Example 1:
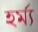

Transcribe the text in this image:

হর্ম্য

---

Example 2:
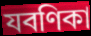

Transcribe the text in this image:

যবণিকা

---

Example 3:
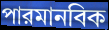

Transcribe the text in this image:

পারমানবিক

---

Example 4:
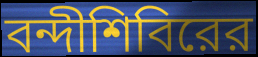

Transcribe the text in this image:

বন্দীশিবিরের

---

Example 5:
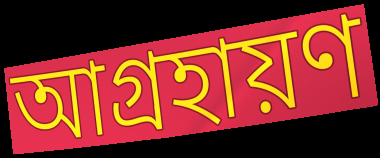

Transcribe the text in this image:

আগ্রহায়ণ